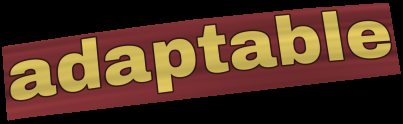
adaptable